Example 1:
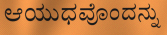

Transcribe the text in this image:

ಆಯುಧವೊಂದನ್ನು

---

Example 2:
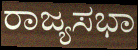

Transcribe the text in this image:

ರಾಜ್ಯಸಭಾ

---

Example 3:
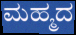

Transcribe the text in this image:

ಮಹ್ಮದ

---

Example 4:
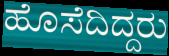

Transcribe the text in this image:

ಹೊಸೆದಿದ್ದರು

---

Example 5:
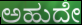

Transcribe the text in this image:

ಅಹುದೇ